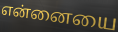
என்னையை